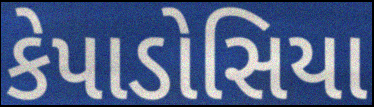
કેપાડોસિયા